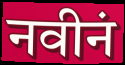
नवीनं